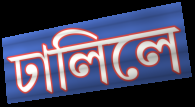
ঢালিলে